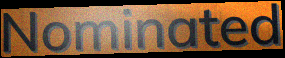
Nominated